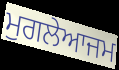
ਮੁਗਲੇਆਜਮ